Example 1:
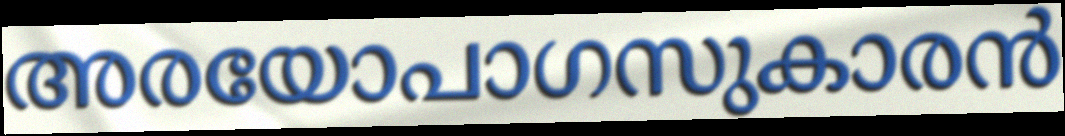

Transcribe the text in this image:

അരയോപാഗസുകാരൻ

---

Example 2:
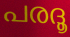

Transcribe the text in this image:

പരദൂ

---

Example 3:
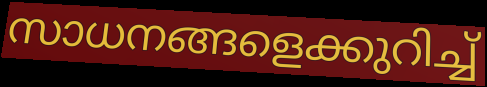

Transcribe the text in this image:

സാധനങ്ങളെക്കുറിച്ച്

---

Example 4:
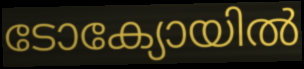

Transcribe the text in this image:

ടോക്യോയിൽ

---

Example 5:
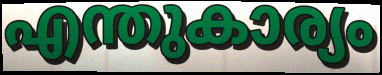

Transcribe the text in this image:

എന്തുകാര്യം